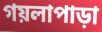
গয়লাপাড়া